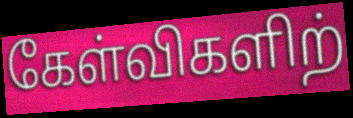
கேள்விகளிற்